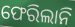
ଫେରିଲାନି